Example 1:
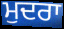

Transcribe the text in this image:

ਮੁਦਰਾ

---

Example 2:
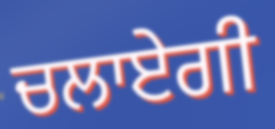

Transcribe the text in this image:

ਚਲਾਏਗੀ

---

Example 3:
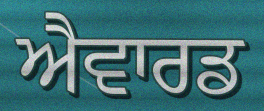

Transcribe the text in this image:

ਐਵਾਰਡ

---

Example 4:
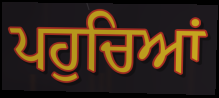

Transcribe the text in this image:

ਪਹੁਚਿਆਂ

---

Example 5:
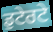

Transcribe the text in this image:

ਡੁਟੇਰਟੇ